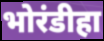
भोरंडीहा